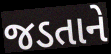
જડતાને